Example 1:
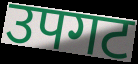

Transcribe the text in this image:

उपगट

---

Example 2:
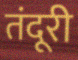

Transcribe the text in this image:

तंदूरी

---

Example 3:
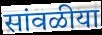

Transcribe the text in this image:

सांवळीया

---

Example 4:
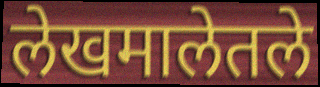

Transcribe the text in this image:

लेखमालेतले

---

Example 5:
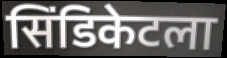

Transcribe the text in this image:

सिंडिकेटला